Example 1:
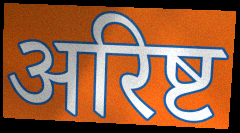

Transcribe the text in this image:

अरिष्ट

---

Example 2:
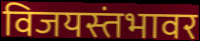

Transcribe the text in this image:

विजयस्तंभावर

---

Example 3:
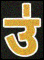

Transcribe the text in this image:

उ॑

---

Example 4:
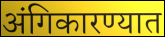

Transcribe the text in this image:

अंगिकारण्यात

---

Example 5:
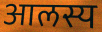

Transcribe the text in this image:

आलस्य